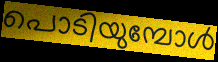
പൊടിയുമ്പോൾ